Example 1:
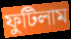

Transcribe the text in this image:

ফুটিলাম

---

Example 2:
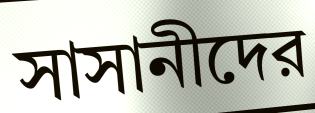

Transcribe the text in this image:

সাসানীদের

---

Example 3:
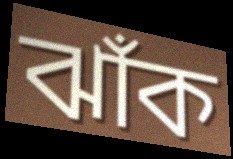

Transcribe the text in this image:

ঝাঁক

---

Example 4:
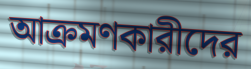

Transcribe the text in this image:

আক্রমণকারীদের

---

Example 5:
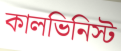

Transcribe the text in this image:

কালভিনিস্ট